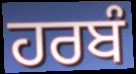
ਹਰਬੰ